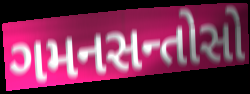
ગમનસન્તોસો